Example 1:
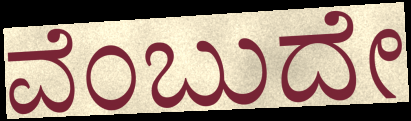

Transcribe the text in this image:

ವೆಂಬುದೇ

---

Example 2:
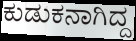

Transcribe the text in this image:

ಕುಡುಕನಾಗಿದ್ದ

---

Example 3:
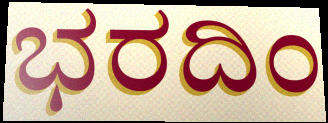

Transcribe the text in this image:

ಭರದಿಂ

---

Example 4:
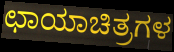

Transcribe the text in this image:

ಛಾಯಾಚಿತ್ರಗಳ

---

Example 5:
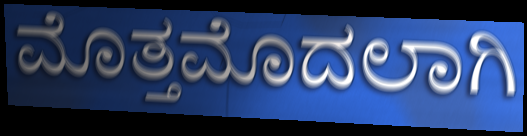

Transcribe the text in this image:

ಮೊತ್ತಮೊದಲಾಗಿ